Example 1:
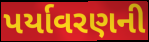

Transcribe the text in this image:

પર્યાવરણની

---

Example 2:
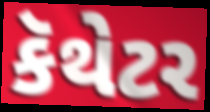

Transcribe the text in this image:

કૅથેટર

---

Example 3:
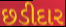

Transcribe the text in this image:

છડીદાર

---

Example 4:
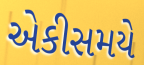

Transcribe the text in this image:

એકીસમયે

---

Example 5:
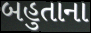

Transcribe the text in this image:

બહુતાના